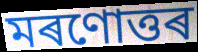
মৰণোত্তৰ